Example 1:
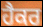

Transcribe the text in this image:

ਹੈਕਰ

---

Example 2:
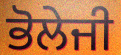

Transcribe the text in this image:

ਭੋਲੇਜੀ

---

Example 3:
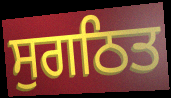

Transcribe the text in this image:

ਸੁਗਠਿਤ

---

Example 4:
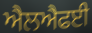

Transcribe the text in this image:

ਐਲਐਫਈ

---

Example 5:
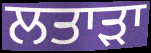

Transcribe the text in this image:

ਲਤਾੜਾ